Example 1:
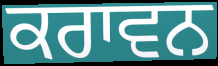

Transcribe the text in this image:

ਕਰਾਵਨ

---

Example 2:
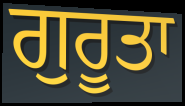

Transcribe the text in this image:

ਗੁਰੂਤਾ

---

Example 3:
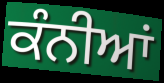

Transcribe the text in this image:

ਕੰਨੀਆਂ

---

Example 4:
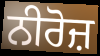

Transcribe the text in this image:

ਨੀਰੋਜ਼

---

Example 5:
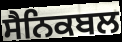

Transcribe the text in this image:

ਸੈਨਿਕਬਲ